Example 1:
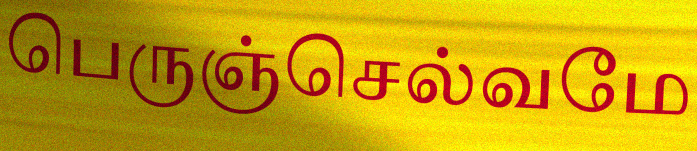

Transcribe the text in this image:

பெருஞ்செல்வமே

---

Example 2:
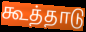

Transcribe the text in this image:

கூத்தாடு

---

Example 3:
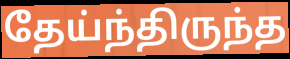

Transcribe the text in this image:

தேய்ந்திருந்த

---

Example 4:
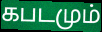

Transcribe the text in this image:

கபடமும்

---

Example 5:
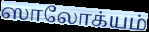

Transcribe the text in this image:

ஸாலோக்யம்